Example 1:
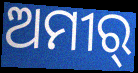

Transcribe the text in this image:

ଅମୀର୍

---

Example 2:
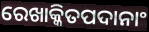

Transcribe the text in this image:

ରେଖାକ୍କିତପଦାନାଂ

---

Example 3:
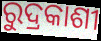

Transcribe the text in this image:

ରୁଦ୍ରକାଶୀ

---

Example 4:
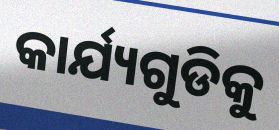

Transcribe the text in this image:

କାର୍ଯ୍ୟଗୁଡିକୁ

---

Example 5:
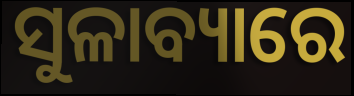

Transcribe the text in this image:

ସୁଳାବ୍ୟାରେ